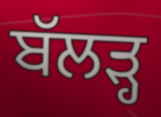
ਬੱਲੜ੍ਹ